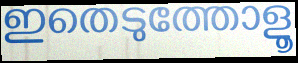
ഇതെടുത്തോളൂ